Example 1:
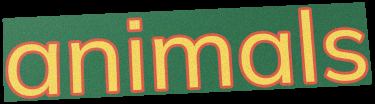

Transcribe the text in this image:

animals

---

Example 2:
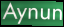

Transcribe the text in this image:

Aynun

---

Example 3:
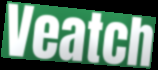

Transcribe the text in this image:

Veatch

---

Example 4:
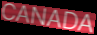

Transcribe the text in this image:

CANADA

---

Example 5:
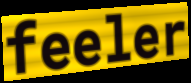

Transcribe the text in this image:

feeler